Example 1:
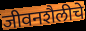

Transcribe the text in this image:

जीवनशैलीचे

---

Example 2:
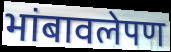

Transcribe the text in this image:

भांबावलेपण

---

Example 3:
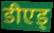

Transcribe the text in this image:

डीएड्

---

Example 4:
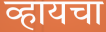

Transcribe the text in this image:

व्हायचा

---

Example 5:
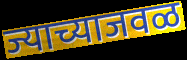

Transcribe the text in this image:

ज्याच्याजवळ